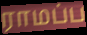
ராமப்ப